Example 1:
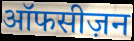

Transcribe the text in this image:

ऑफसीज़न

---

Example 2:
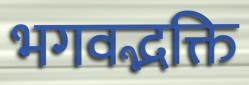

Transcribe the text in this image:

भगवद्भक्ति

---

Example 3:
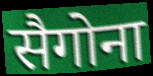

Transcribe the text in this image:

सैगोना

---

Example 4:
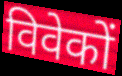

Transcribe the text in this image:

विवेकों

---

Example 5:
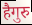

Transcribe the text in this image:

हैगुरु